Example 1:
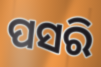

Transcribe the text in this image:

ପସରି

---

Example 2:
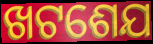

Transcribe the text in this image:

ଖଟଶେଯ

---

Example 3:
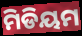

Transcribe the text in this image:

ମିଡିୟମ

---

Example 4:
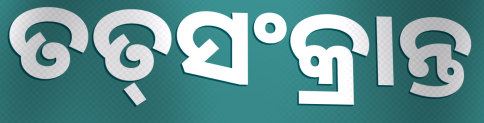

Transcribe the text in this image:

ତତ୍‌ସଂକ୍ରାନ୍ତ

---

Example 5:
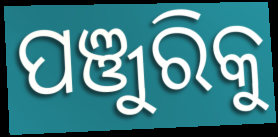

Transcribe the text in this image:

ପଞ୍ଜୁରିକୁ